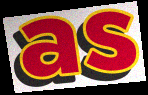
as